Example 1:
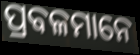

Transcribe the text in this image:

ପ୍ରବଳମାନେ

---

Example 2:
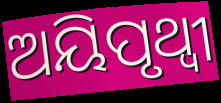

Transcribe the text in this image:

ଅୟିପୃଥ୍ୱୀ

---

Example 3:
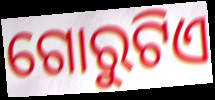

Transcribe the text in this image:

ଗୋରୁଟିଏ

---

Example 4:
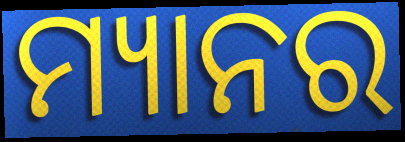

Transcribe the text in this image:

ମ୍ୟାନର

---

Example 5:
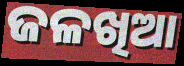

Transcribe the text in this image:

ଜଳଖିଆ